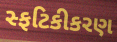
સ્ફટિકીકરણ